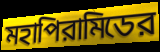
মহাপিরামিডের